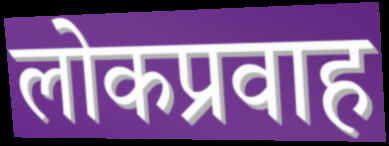
लोकप्रवाह